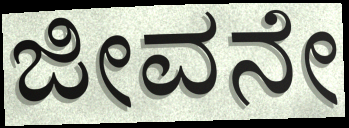
ಜೀವನೇ